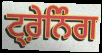
ਟ੍ਰ਼ੇਨਿੰਗ